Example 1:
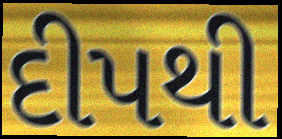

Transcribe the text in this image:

દીપથી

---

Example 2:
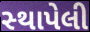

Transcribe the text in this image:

સ્‍થાપેલી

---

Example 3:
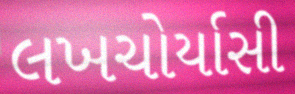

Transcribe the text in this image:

લખચોર્યાસી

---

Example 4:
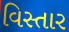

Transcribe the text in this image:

વિસ્તાર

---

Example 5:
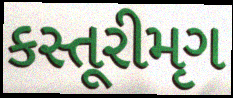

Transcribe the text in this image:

કસ્તૂરીમૃગ